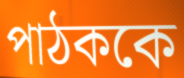
পাঠককে